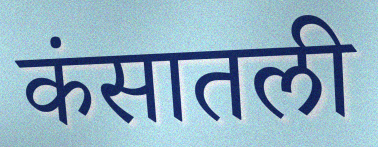
कंसातली